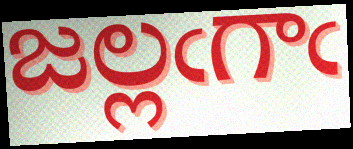
జల్లఁగాఁ